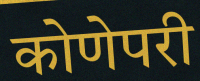
कोणेपरी